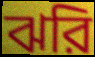
ঝরি